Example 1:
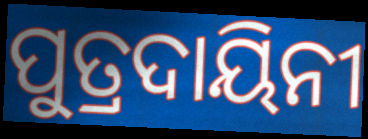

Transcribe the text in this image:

ପୁତ୍ରଦାୟିନୀ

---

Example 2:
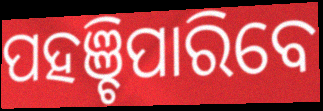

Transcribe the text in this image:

ପହଞ୍ଚିପାରିବେ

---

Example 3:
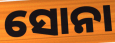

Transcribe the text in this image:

ସୋନା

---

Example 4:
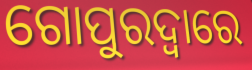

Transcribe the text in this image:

ଗୋପୁରଦ୍ଵାରେ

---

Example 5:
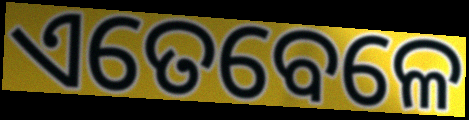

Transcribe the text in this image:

ଏତେବେଳେ